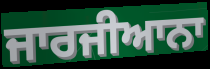
ਜਾਰਜੀਆਨਾ